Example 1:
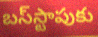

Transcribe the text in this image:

బస్‌స్టాపుకు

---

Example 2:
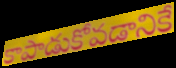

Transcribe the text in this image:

కాపాడుకోవడానికే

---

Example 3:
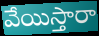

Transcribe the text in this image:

వేయిస్తారా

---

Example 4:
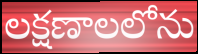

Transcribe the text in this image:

లక్షణాలలోను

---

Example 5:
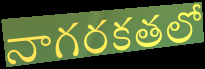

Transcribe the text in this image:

నాగరకతలో